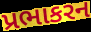
પ્રભાકરન